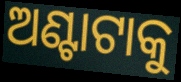
ଅଣ୍ଟାଟାକୁ